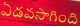
ఏడవసాగింది